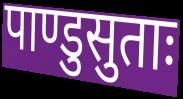
पाण्डुसुताः